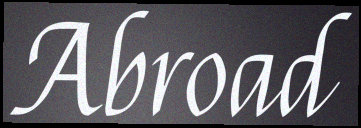
Abroad